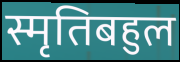
स्मृतिबहुल